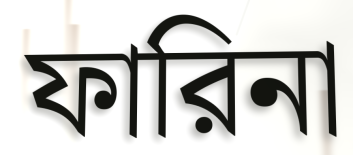
ফারিনা